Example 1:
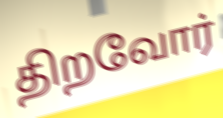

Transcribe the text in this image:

திறவோர்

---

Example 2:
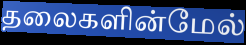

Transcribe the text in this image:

தலைகளின்மேல்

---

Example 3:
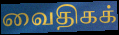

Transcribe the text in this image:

வைதிகக்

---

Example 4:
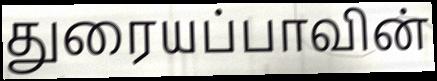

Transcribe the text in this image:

துரையப்பாவின்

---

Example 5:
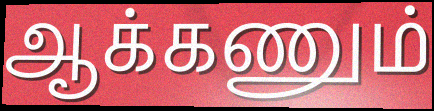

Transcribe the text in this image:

ஆக்கணும்